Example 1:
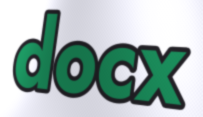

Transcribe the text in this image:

docx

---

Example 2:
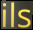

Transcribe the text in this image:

ils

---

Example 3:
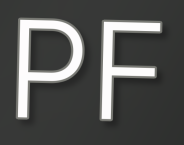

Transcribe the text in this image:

PF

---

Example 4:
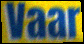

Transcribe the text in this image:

Vaar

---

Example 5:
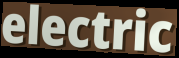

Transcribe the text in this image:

electric